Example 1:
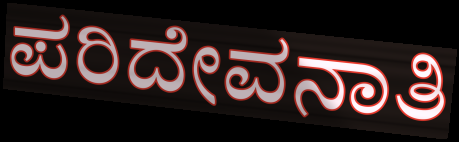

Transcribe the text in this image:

ಪರಿದೇವನಾತಿ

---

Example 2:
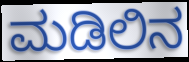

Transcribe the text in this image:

ಮಡಿಲಿನ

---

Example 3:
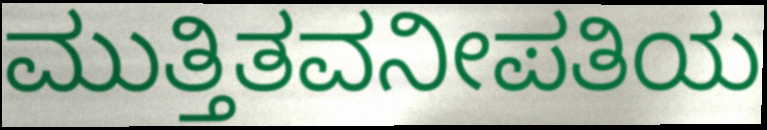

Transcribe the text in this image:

ಮುತ್ತಿತವನೀಪತಿಯ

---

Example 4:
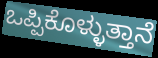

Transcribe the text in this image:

ಒಪ್ಪಿಕೊಳ್ಳುತ್ತಾನೆ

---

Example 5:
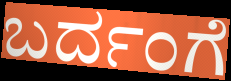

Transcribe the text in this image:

ಬರ್ದಂಗೆ